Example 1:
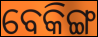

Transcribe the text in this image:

ବେକିଙ୍ଗ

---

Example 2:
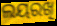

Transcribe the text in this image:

ଲୟରଖି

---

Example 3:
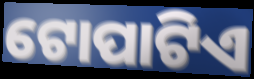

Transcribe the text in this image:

ଟୋପାଟିଏ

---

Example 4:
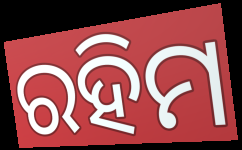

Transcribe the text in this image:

ରହିମ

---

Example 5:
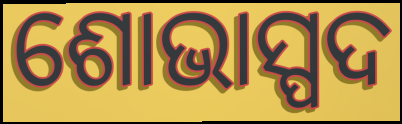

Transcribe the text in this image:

ଶୋଭାସ୍ପଦ